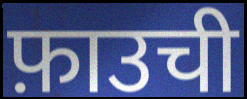
फ़ाउची